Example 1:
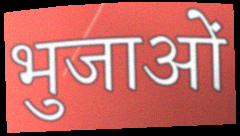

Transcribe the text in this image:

भुजाओं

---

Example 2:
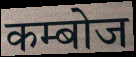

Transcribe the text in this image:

कम्बोज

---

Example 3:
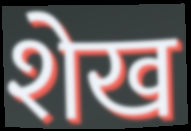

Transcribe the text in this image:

शेख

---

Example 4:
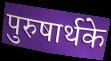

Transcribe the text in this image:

पुरुषार्थके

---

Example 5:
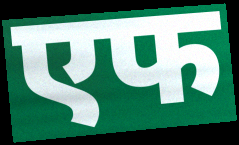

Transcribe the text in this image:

एफ